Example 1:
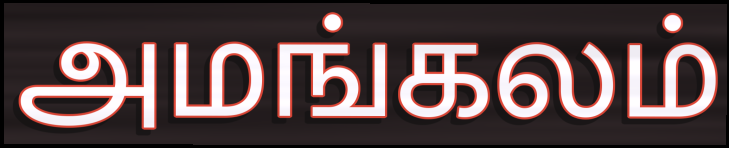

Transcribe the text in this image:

அமங்கலம்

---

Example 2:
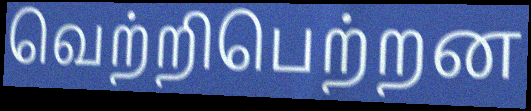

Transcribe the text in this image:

வெற்றிபெற்றன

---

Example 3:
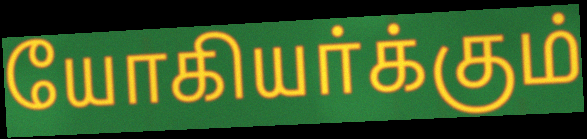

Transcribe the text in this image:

யோகியர்க்கும்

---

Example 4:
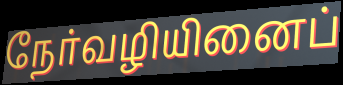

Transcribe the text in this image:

நேர்வழியினைப்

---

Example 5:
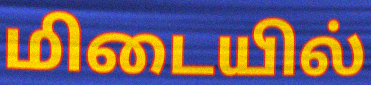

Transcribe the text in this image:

மிடையில்